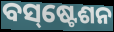
ବସ୍‌ଷ୍ଟେଶନ